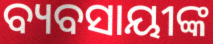
ବ୍ୟବସାୟୀଙ୍କ